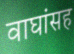
वाघांसह